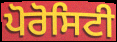
ਪੋਰੋਸਿਟੀ